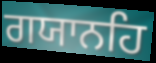
ਗਯਾਨਹਿ